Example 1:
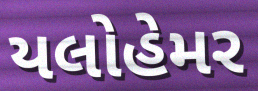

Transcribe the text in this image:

યલોહેમર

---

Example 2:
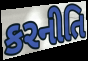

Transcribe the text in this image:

કરનીતિ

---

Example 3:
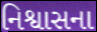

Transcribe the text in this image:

નિશ્વાસના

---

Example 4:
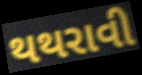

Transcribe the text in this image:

થથરાવી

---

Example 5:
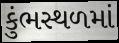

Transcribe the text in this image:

કુંભસ્થળમાં